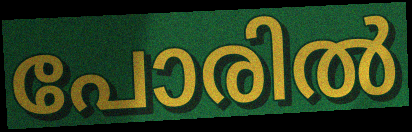
പോരിൽ